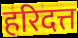
हरिदत्त